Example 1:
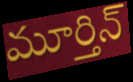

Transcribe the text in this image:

మూర్తిన్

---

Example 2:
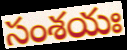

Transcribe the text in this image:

సంశయః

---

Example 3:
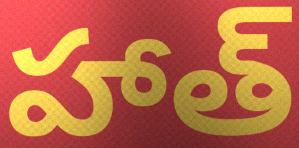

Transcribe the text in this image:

హాత్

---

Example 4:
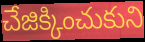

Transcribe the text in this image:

చేజిక్కించుకుని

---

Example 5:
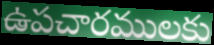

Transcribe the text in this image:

ఉపచారములకు